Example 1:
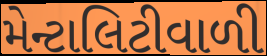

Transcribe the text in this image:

મેન્ટાલિટીવાળી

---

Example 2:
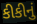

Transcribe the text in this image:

કીકીનું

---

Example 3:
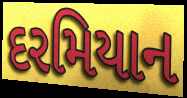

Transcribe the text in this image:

દરમિયાન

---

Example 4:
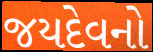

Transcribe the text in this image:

જયદેવનો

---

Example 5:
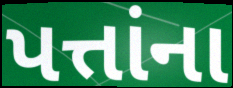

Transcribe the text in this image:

પત્તાંના